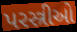
પરસ્ત્રીઓ